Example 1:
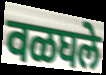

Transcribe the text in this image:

वळघले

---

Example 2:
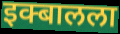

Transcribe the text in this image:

इक्बालला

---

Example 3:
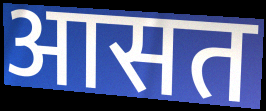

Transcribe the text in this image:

आसत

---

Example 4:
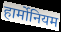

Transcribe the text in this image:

हार्मोनियम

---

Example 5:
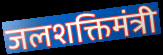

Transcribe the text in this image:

जलशक्तिमंत्री